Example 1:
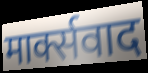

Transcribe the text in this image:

मार्क्सवाद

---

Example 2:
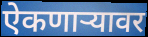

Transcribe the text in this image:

ऐकणार्‍यावर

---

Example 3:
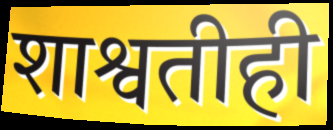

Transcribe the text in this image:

शाश्वतीही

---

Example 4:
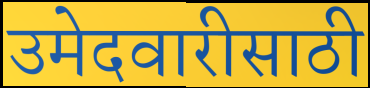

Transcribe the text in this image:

उमेदवारीसाठी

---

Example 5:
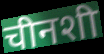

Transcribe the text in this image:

चीनशी